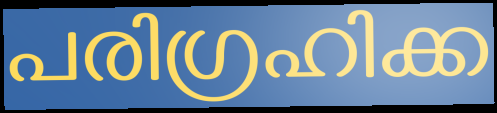
പരിഗ്രഹിക്ക